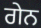
ਗੇਨ